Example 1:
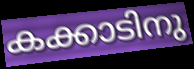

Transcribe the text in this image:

കക്കാടിനു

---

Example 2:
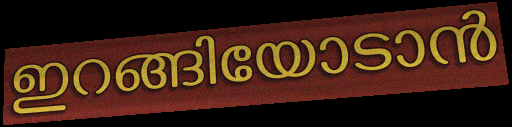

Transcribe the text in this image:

ഇറങ്ങിയോടാൻ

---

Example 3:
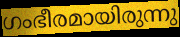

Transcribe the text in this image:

ഗംഭീരമായിരുന്നു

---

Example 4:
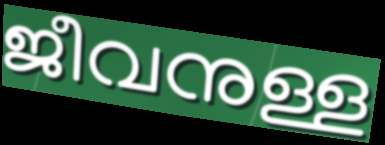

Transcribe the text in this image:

ജീവനുള്ള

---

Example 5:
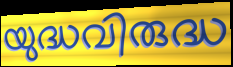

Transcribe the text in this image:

യുദ്ധവിരുദ്ധ